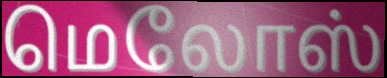
மெலோஸ்